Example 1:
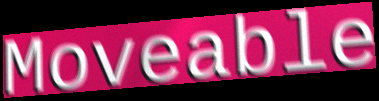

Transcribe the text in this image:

Moveable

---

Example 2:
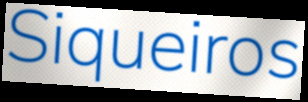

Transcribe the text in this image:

Siqueiros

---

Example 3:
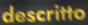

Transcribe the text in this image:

descritto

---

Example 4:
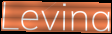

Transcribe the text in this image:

Levina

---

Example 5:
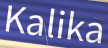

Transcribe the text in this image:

Kalika